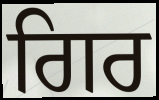
ਗਿਰ